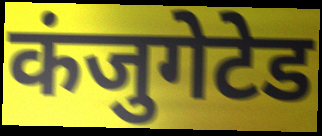
कंजुगेटेड